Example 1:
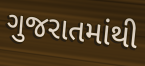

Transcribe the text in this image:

ગુજરાતમાંથી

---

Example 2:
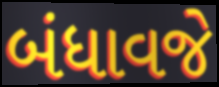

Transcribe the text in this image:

બંધાવજે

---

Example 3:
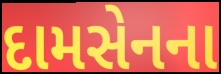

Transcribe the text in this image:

દામસેનના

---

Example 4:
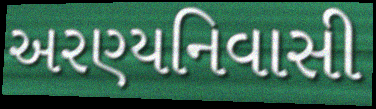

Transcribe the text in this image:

અરણ્યનિવાસી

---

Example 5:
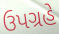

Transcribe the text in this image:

ઉપગ્રહે